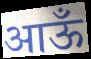
आऊँ